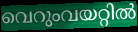
വെറുംവയറ്റിൽ